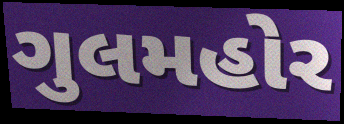
ગુલમહોર